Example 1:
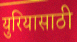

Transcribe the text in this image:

युरियासाठी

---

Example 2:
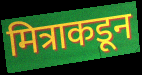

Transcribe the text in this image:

मित्राकडून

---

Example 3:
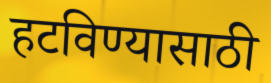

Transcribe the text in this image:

हटविण्यासाठी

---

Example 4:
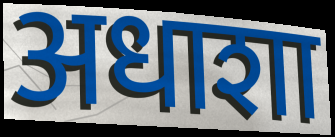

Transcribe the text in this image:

अधाशा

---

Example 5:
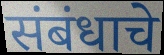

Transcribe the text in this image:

संबंधाचे